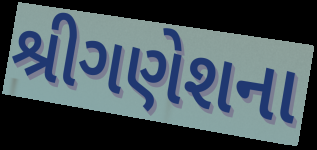
શ્રીગણેશના